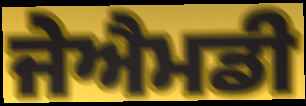
ਜੇਐਮਡੀ